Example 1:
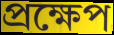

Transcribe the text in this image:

প্রক্ষেপ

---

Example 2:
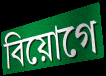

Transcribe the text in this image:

বিয়োগে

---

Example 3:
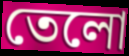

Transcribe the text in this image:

তেলো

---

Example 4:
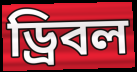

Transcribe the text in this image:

ড্রিবল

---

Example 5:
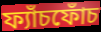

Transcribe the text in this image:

ফ্যাঁচফোঁচ